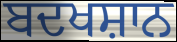
ਬਦਖਸ਼ਾਨ